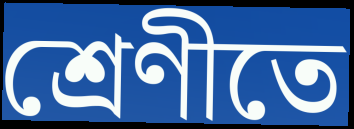
শ্ৰেণীতে